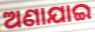
ଅଣାଯାଇ